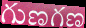
గుణగణ